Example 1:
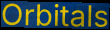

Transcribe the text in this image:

Orbitals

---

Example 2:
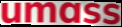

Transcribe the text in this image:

umass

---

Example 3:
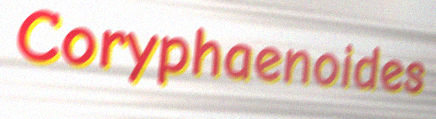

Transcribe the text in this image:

Coryphaenoides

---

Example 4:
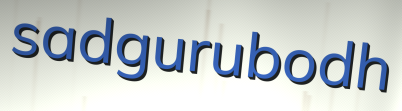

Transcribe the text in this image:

sadgurubodh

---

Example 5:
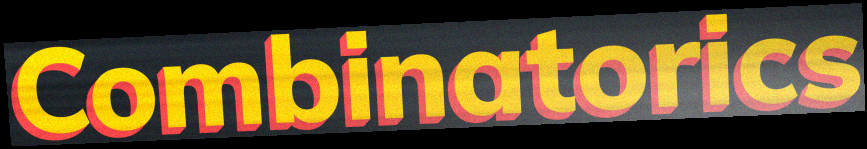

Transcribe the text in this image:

Combinatorics